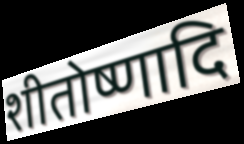
शीतोष्णादि